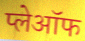
प्लेऑफ